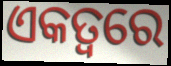
ଏକତ୍ୱରେ